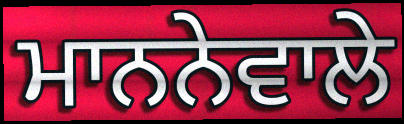
ਮਾਨਨੇਵਾਲੇ